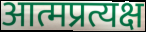
आत्मप्रत्यक्ष